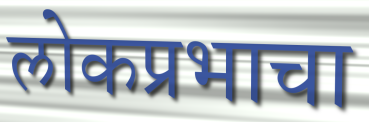
लोकप्रभाचा